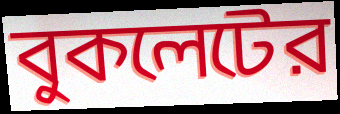
বুকলেটের